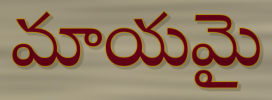
మాయమై